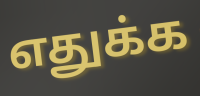
எதுக்க